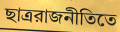
ছাত্ররাজনীতিতে